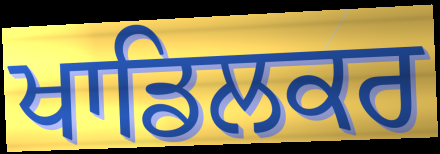
ਖਾਡਿਲਕਰ